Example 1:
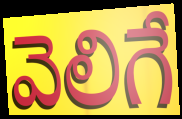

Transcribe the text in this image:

వెలిగే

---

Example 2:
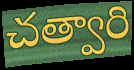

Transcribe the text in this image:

చత్వారి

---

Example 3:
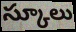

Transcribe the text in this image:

స్కూలు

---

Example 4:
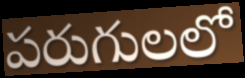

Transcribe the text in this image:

పరుగులలో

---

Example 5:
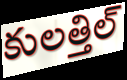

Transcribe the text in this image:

కులత్తిల్